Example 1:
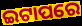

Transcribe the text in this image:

ଇଟାପରେ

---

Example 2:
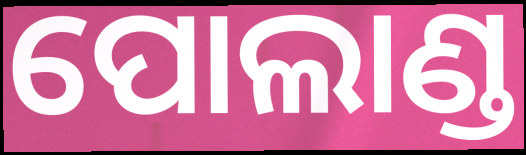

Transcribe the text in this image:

ପୋଲାଣ୍ଡ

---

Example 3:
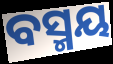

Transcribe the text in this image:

ବସ୍ମୟ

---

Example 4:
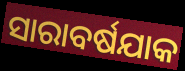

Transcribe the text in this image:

ସାରାବର୍ଷଯାକ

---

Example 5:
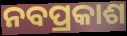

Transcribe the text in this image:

ନବପ୍ରକାଶ